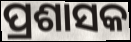
ପ୍ରଶାସକ